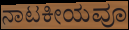
ನಾಟಕೀಯವೂ